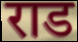
राड